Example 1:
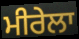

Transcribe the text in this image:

ਮੀਰੇਲਾ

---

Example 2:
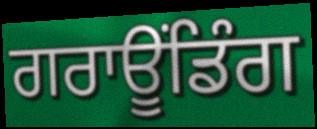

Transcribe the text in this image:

ਗਰਾਊਂਡਿੰਗ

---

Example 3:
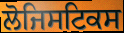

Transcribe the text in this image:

ਲੋਜਿਸਟਿਕਸ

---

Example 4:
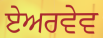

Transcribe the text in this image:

ਏਅਰਵੇਵ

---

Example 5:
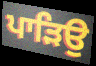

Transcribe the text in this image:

ਪਾੜਿਉ